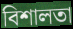
বিশালতা